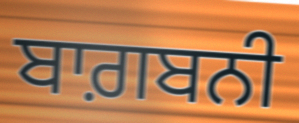
ਬਾਗ਼ਬਨੀ